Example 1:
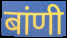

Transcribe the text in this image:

बांणी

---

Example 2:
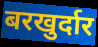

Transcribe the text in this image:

बरखुर्दार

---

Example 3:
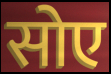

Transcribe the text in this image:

सोए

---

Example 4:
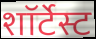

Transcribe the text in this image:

शॉर्टेस्ट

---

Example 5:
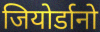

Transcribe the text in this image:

जियोर्डानो